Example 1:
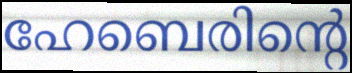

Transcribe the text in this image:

ഹേബെരിന്റെ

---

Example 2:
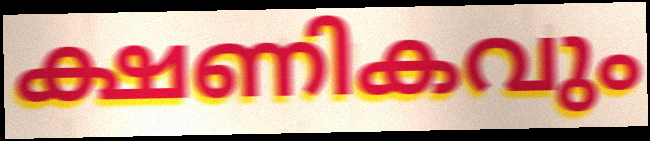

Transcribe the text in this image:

ക്ഷണികവും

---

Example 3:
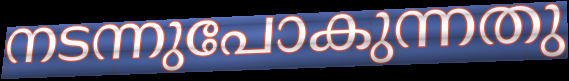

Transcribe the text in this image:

നടന്നുപോകുന്നതു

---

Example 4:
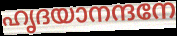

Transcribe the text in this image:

ഹൃദയാനന്ദനേ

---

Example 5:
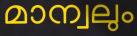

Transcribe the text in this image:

മാന്വലും